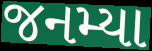
જનમ્યા